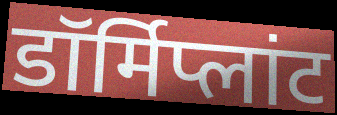
डॉर्मिप्लांट